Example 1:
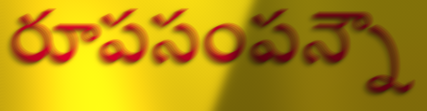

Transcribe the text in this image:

రూపసంపన్నౌ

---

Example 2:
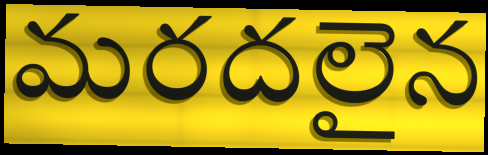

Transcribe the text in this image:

మరదలైన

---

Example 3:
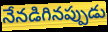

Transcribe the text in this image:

నేనడిగినప్పుడు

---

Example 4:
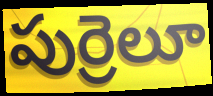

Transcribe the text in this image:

పుర్రెలూ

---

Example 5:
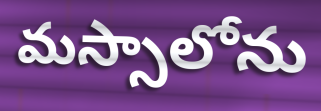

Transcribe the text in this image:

మస్సాలోను